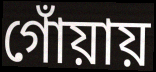
গোঁয়ায়